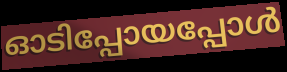
ഓടിപ്പോയപ്പോൾ